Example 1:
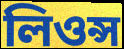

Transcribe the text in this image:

লিওন্স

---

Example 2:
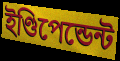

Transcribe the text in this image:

ইণ্ডিপেন্ডেন্ট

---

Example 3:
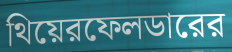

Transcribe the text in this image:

থিয়েরফেলডারের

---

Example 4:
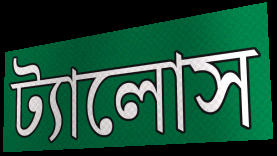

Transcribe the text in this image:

ট্যালোস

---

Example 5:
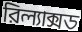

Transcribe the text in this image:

রিল্যাক্সড